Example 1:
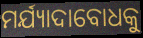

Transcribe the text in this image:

ମର୍ଯ୍ୟାଦାବୋଧକୁ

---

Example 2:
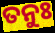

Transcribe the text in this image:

ତନୁଃ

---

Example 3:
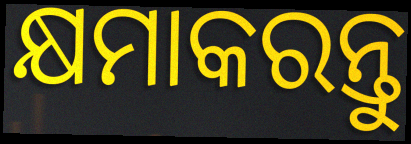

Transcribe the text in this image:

କ୍ଷମାକରନ୍ତୁ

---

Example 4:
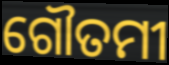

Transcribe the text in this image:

ଗୌତମୀ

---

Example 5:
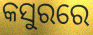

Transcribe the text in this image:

କସୁରରେ